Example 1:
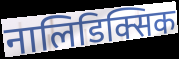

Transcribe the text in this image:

नालिडिक्सिक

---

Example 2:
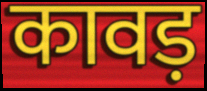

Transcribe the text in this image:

कावड़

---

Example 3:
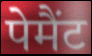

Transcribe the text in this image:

पेमैंट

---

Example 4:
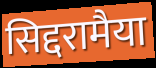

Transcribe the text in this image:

सिद्दरामैया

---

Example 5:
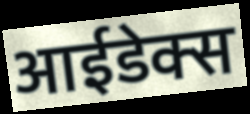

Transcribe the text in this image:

आईडेक्स